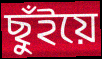
ছুঁইয়ে